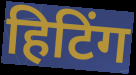
हिटिंग